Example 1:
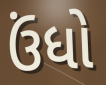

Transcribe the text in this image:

ઉંધો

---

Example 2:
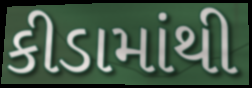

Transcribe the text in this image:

કીડામાંથી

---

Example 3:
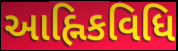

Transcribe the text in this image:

આહ્નિકવિધિ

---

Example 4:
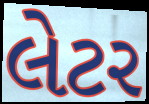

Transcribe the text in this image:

લેટર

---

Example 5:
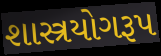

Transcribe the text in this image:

શાસ્ત્રયોગરૂપ